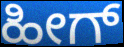
ಹೀಗ್